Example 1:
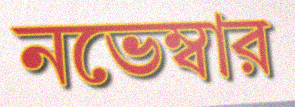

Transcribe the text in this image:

নভেম্বার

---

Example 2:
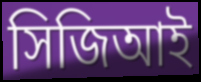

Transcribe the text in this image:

সিজিআই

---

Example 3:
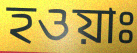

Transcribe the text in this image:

হওয়াঃ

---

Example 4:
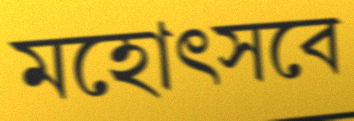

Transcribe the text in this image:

মহোৎসবে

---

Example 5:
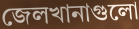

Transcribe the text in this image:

জেলখানাগুলো